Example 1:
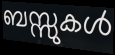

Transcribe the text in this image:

ബസ്സുകൾ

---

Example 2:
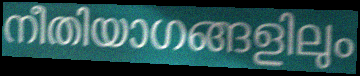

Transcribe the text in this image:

നീതിയാഗങ്ങളിലും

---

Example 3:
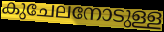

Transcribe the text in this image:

കുചേലനോടുള്ള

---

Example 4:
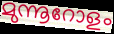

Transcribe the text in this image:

മുന്നൂറോളം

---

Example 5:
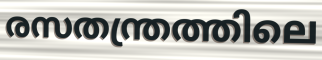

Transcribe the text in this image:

രസതന്ത്രത്തിലെ